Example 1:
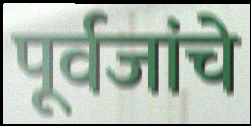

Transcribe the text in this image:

पूर्वजांचे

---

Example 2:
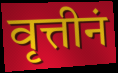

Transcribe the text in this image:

वृत्तीनं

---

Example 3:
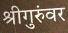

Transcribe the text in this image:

श्रीगुरुंवर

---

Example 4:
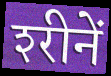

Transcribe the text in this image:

श्रीनें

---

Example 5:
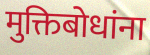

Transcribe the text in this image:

मुक्तिबोधांना